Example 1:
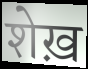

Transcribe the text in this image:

शेख़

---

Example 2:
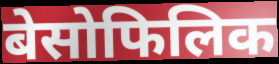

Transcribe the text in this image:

बेसोफिलिक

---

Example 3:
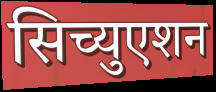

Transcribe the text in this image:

सिच्युएशन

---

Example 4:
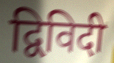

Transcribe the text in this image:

द्विविदी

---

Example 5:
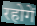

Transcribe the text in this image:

रहोगें